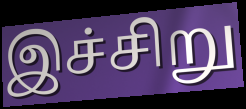
இச்சிறு